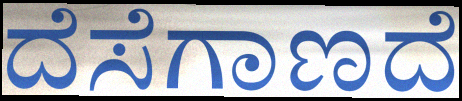
ದೆಸೆಗಾಣದೆ